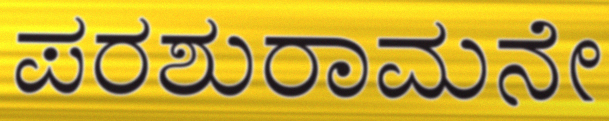
ಪರಶುರಾಮನೇ